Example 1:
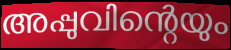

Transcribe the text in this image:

അപ്പുവിന്റെയും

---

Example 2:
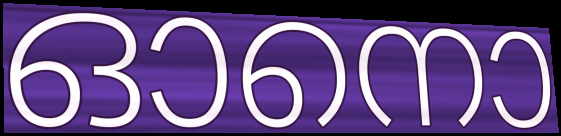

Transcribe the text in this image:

ഓനൊ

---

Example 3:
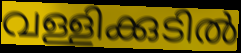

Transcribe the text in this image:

വള്ളിക്കുടിൽ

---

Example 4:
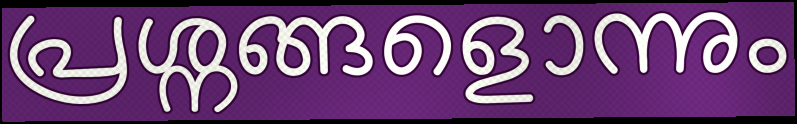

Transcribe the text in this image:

പ്രശ്നങ്ങളൊന്നും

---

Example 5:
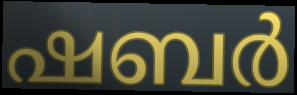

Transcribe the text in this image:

ഷബർ